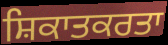
ਸ਼ਿਕਾਤਕਰਤਾ